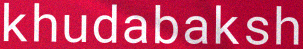
khudabaksh